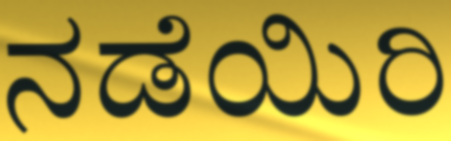
ನಡೆಯಿರಿ